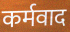
कर्मवाद